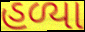
હળ્યા